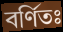
বর্ণিতঃ